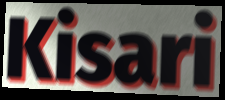
Kisari